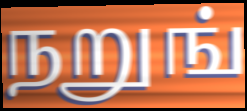
நறுங்